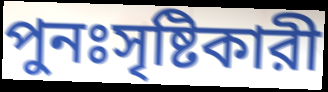
পুনঃসৃষ্টিকারী